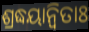
ଶ୍ରଦ୍ଧୟାନ୍ୱିତାଃ